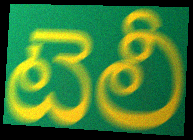
టెలీ